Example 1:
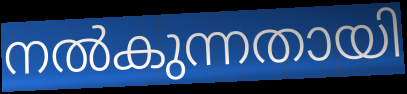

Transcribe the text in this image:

നൽകുന്നതായി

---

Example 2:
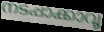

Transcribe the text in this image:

നടപ്പാക്കാവൂ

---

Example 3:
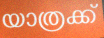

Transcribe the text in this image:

യാത്രക്ക്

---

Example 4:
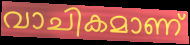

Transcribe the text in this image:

വാചികമാണ്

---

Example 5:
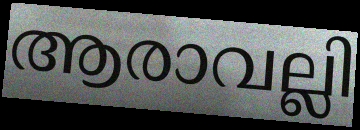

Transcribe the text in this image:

ആരാവല്ലി